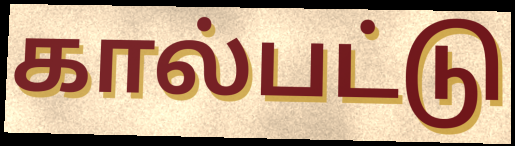
கால்பட்டு